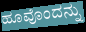
ಹೂವೊಂದನ್ನು